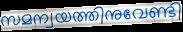
സമന്വയത്തിനുവേണ്ടി